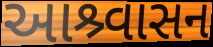
આશ્ર્વાસન